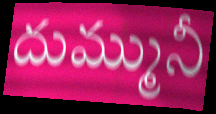
దుమ్మునీ